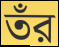
তঁর